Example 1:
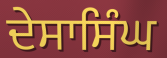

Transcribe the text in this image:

ਦੇਸਾਸਿੰਘ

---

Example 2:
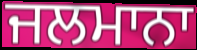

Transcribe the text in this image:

ਜਲਮਾਨਾ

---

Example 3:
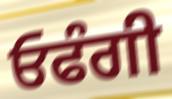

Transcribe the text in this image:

ਓਫੰਗੀ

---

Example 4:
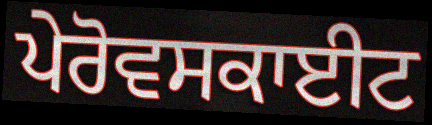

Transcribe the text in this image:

ਪੇਰੋਵਸਕਾਈਟ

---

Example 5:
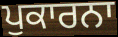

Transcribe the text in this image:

ਪੁਕਾਰਨਾ